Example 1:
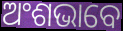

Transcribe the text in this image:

ଅଂଶଭାବେ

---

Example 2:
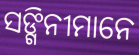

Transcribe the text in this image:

ସଙ୍ଗିନୀମାନେ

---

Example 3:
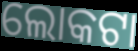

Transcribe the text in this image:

ଲୋକଟା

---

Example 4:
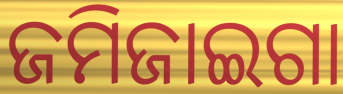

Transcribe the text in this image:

ଜମିଜାଇଗା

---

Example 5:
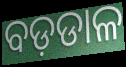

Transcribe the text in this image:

ବଡ଼ଡାଳ